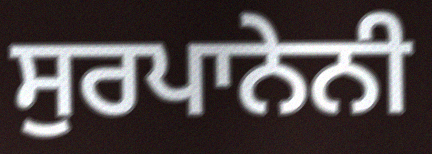
ਸੁਰਪਾਨੇਨੀ